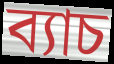
ব্যাচ